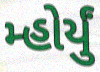
મ્હોર્યું